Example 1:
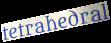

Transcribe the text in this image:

tetrahedral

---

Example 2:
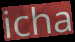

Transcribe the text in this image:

icha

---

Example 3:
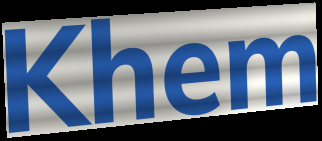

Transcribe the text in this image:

Khem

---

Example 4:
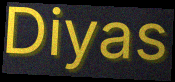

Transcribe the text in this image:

Diyas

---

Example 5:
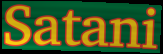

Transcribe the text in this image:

Satani